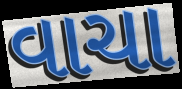
વાચા